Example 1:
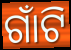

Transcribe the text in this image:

ଗାଁଟି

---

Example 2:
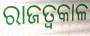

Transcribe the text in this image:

ରାଜତ୍ଵକାଳ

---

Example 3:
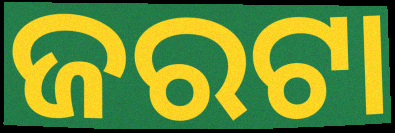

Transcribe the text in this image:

ଜରଟା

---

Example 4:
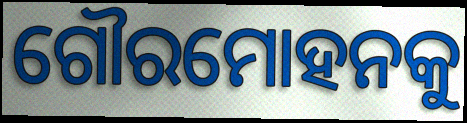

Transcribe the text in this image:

ଗୌରମୋହନକୁ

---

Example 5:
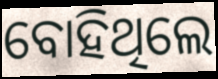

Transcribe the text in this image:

ବୋହିଥିଲେ